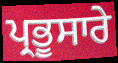
ਪ੍ਰਭੂਸਾਰੇ